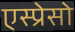
एस्प्रेसो